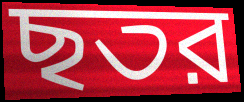
ছতর